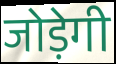
जोड़ेगी